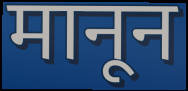
मानून